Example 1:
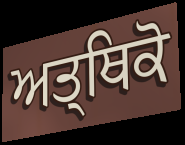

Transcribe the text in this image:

ਅਤ੍ਥਿਕੋ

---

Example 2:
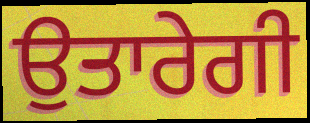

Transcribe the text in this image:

ਉਤਾਰੇਗੀ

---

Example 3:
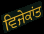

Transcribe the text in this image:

ਵਿਜੇਕਾਂਤ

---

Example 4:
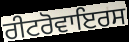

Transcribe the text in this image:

ਰੀਟਰੋਵਾਇਰਸ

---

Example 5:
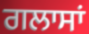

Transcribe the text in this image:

ਗਲਾਸਾਂ